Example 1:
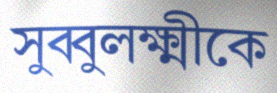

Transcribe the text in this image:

সুব্বুলক্ষ্মীকে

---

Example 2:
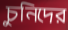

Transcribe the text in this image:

চুনিদের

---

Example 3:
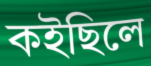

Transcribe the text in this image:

কইছিলে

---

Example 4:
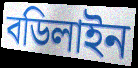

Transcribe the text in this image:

বডিলাইন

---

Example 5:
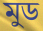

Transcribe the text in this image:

মুড